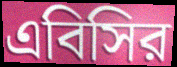
এবিসির